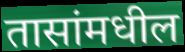
तासांमधील